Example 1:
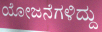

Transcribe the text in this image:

ಯೋಜನೆಗಳಿದ್ದು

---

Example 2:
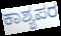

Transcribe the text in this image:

ಕಾಶ್ಯಪರ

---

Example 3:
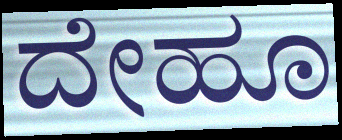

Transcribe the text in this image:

ದೇಹೂ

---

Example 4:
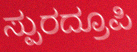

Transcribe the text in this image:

ಸ್ಪುರದ್ರೂಪಿ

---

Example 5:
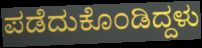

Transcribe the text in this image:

ಪಡೆದುಕೊಂಡಿದ್ದಳು